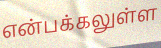
என்பக்கலுள்ள